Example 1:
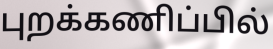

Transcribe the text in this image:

புறக்கணிப்பில்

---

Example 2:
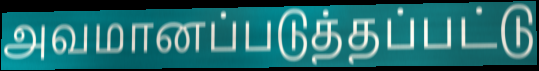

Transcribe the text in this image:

அவமானப்படுத்தப்பட்டு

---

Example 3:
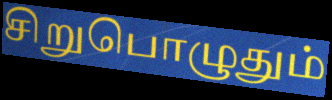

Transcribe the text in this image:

சிறுபொழுதும்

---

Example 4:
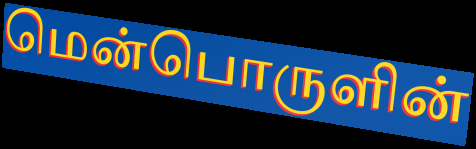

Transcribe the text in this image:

மென்பொருளின்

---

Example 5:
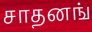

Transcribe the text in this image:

சாதனங்